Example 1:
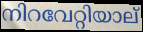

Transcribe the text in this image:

നിറവേറ്റിയാല്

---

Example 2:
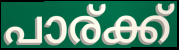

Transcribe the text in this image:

പാര്ക്ക്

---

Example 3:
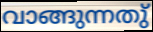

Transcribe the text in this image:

വാങ്ങുന്നതു്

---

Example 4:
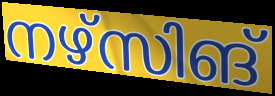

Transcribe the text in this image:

നഴ്സിങ്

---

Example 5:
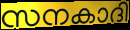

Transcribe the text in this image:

സനകാദി